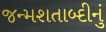
જન્મશતાબ્દીનું